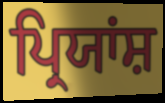
ਪ੍ਰਿਯਾਂਸ਼